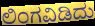
ಲಿಂಗವಿಡಿದು